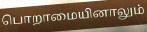
பொறாமையினாலும்